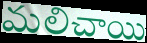
మలిచాయి